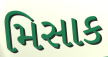
મિસાક